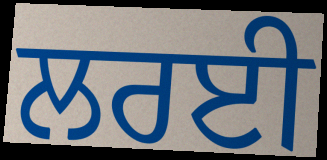
ਲਰਈ